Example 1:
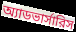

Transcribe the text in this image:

অ্যাডভার্সারিস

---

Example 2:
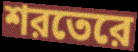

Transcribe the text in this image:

শরতেরে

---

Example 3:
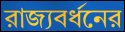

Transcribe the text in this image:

রাজ্যবর্ধনের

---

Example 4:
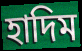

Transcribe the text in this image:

হাদিম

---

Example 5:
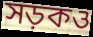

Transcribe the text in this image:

সড়কও